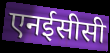
एनईसीसी